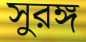
সুরঙ্গ